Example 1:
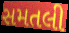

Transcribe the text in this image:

સમતલી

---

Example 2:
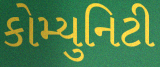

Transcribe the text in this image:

કોમ્યુનિટી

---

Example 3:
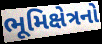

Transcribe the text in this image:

ભૂમિક્ષેત્રનો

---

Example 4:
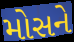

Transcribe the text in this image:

મોસને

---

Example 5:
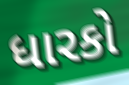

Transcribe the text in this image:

ધારકો